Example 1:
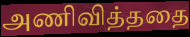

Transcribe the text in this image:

அணிவித்ததை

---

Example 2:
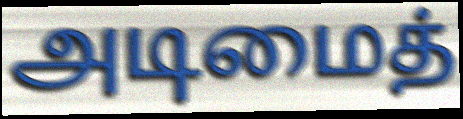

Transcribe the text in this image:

அடிமைத்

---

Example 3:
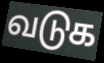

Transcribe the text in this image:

வடுக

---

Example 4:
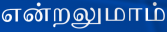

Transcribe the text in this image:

என்றலுமாம்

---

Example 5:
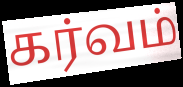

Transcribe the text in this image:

கர்வம்